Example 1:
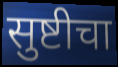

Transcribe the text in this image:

सुष्टीचा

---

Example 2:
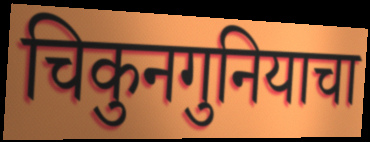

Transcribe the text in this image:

चिकुनगुनियाचा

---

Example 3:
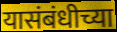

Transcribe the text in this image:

यासंबंधीच्या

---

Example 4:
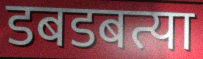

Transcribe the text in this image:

डबडबत्या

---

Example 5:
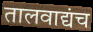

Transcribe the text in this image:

तालवाद्यंच